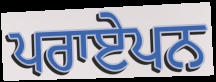
ਪਰਾਏਪਨ